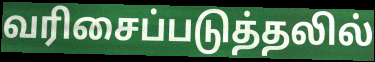
வரிசைப்படுத்தலில்